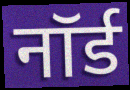
नॉर्ड